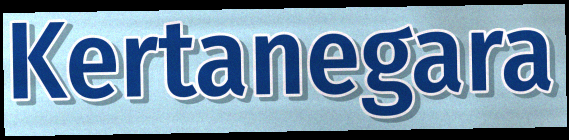
Kertanegara